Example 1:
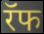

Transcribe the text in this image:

रॅफ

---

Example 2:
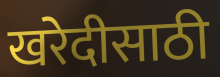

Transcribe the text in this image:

खरेदीसाठी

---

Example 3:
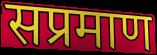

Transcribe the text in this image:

सप्रमाण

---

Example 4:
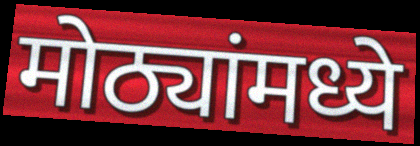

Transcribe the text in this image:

मोठ्यांमध्ये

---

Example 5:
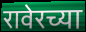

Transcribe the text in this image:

रावेरच्या